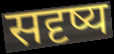
सदृष्य